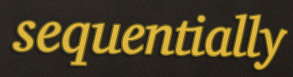
sequentially